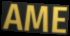
AME